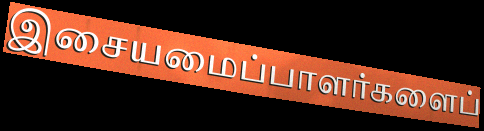
இசையமைப்பாளர்களைப்